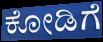
ಕೋಡಿಗೆ